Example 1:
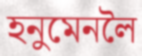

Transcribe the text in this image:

হনুমেনলৈ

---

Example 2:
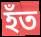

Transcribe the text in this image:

হঁত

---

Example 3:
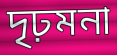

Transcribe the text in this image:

দৃঢ়মনা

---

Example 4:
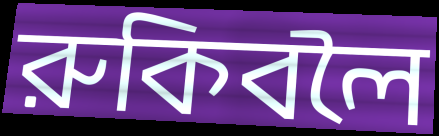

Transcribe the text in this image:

ৰুকিবলৈ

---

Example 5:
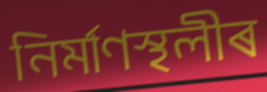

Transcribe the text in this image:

নিৰ্মাণস্থলীৰ